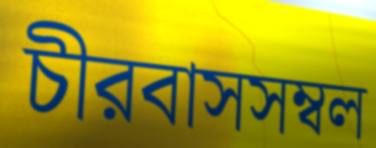
চীরবাসসম্বল